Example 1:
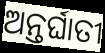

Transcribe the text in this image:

ଅନ୍ତର୍ଘାତୀ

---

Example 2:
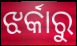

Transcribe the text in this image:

ଝର୍କାରୁ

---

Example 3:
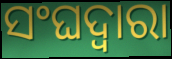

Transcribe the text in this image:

ସଂଘଦ୍ୱାରା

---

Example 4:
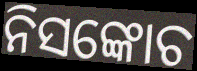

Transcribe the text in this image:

ନିସଙ୍କୋଚ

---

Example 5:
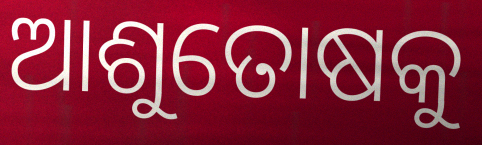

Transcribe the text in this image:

ଆଶୁତୋଷକୁ